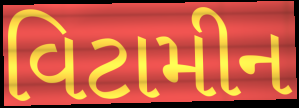
વિટામીન